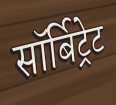
सॉर्बिट्रेट